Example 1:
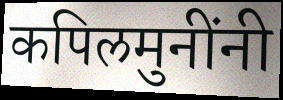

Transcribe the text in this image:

कपिलमुनींनी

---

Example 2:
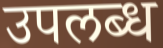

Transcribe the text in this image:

उपलब्ध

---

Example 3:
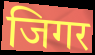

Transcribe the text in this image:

जिगर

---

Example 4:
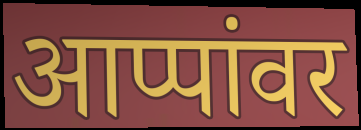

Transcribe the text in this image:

आप्पांवर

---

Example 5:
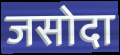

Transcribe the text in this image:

जसोदा